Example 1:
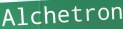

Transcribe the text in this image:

Alchetron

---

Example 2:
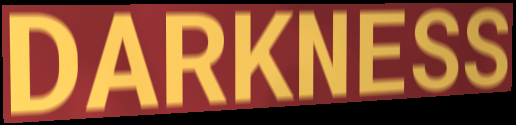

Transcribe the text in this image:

DARKNESS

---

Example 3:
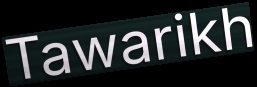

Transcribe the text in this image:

Tawarikh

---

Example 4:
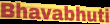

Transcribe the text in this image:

Bhavabhuti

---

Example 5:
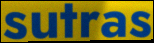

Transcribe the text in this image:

sutras